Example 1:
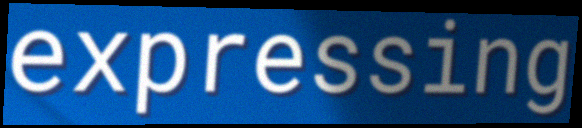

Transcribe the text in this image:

expressing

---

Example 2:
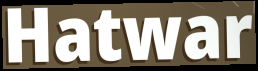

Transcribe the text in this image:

Hatwar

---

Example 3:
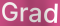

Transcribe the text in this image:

Grad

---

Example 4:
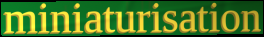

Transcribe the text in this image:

miniaturisation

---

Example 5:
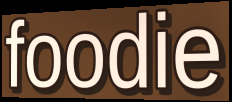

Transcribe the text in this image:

foodie